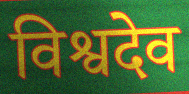
विश्वदेव